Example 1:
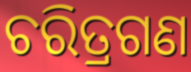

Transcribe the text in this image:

ଚରିତ୍ରଗଣ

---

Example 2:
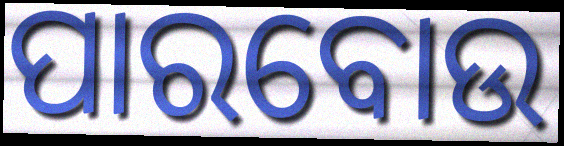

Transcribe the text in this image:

ପାରବୋଉ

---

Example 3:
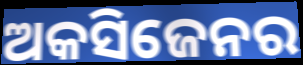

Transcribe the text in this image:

ଅକସିଜେନର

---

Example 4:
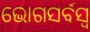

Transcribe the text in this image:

ଭୋଗସର୍ବସ୍ୱ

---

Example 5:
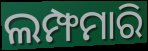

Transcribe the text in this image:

ଲମ୍ଫମାରି